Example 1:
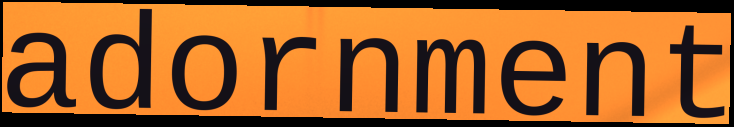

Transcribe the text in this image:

adornment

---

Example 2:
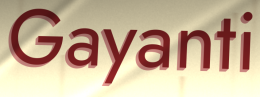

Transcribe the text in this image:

Gayanti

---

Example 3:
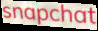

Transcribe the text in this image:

snapchat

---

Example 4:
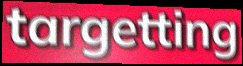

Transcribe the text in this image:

targetting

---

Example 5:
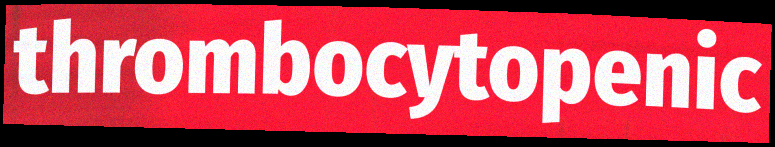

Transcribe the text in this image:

thrombocytopenic